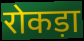
रोकड़ा